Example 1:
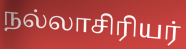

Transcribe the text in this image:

நல்லாசிரியர்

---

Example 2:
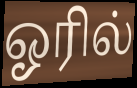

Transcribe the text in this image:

ஓரில்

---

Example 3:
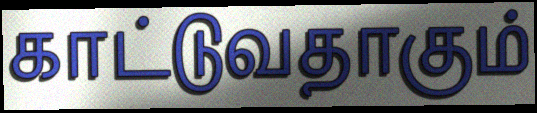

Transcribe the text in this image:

காட்டுவதாகும்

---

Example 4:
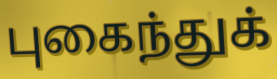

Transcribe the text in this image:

புகைந்துக்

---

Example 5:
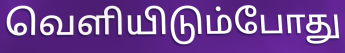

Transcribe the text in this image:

வெளியிடும்போது